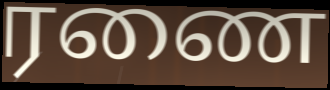
ரணை